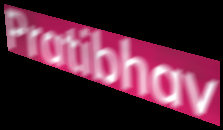
Pratibhav